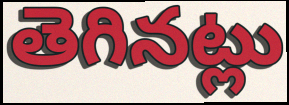
తెగినట్లు